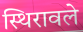
स्थिरावले